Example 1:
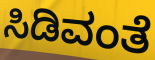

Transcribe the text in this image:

ಸಿಡಿವಂತೆ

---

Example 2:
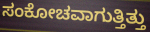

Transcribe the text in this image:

ಸಂಕೋಚವಾಗುತ್ತಿತ್ತು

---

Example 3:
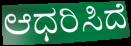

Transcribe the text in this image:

ಆಧರಿಸಿದೆ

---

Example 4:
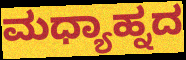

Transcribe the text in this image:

ಮಧ್ಯಾಹ್ನದ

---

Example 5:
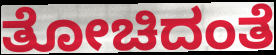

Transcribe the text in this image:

ತೋಚಿದಂತೆ